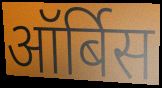
ऑर्बिस